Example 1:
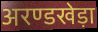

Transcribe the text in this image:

अरण्डखेड़ा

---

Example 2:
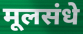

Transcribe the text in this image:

मूलसंधे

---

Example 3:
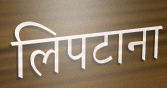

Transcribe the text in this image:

लिपटाना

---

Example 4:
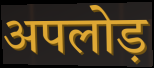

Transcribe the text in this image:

अपलोड़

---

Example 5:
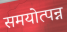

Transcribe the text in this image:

समयोत्पन्न